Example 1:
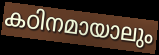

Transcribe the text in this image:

കഠിനമായാലും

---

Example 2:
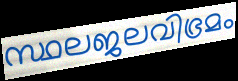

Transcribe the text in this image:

സ്ഥലജലവിഭ്രമം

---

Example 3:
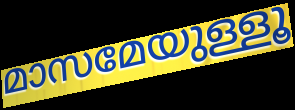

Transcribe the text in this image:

മാസമേയുള്ളൂ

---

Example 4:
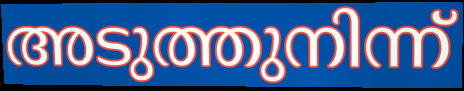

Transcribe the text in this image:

അടുത്തുനിന്ന്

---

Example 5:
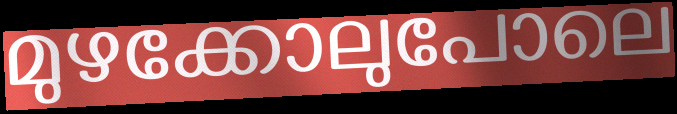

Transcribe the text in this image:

മുഴക്കോലുപോലെ